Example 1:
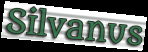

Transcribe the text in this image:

Silvanus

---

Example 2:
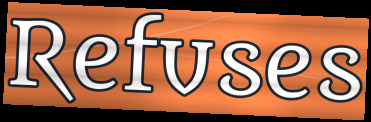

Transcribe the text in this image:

Refuses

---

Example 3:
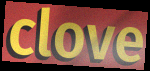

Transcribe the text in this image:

clove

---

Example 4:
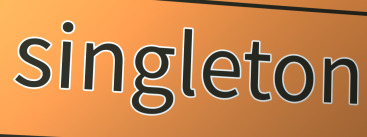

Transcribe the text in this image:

singleton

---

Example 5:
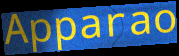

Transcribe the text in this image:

Apparao